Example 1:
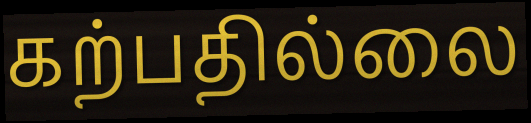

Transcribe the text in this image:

கற்பதில்லை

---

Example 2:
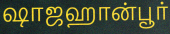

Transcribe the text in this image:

ஷாஜஹான்பூர்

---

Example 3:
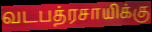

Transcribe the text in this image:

வடபத்ரசாயிக்கு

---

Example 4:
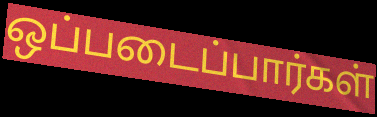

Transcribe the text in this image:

ஒப்படைப்பார்கள்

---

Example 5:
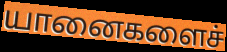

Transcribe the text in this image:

யானைகளைச்